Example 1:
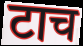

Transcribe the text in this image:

टाच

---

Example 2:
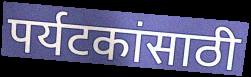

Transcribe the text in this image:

पर्यटकांसाठी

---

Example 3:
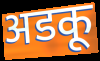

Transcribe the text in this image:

अडकू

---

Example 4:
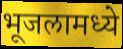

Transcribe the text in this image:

भूजलामध्ये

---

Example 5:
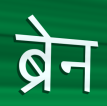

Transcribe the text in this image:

ब्रेन